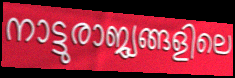
നാട്ടുരാജ്യങ്ങളിലെ